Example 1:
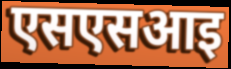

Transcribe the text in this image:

एसएसआइ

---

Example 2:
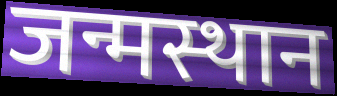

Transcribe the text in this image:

जन्मस्थान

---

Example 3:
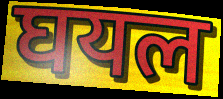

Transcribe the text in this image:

घयल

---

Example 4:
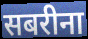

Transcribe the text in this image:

सबरीना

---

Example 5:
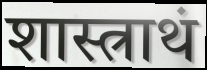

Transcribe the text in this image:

शास्त्राथं